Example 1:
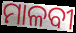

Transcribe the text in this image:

ମାଳବୀ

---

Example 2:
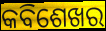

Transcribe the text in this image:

କବିଶେଖର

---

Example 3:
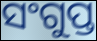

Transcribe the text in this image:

ସଂଗୁପ୍ତ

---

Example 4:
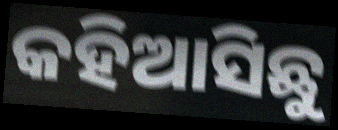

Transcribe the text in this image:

କହିଆସିଛୁ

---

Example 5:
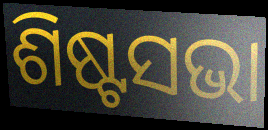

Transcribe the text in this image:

ଶିଷ୍ଟସଭା